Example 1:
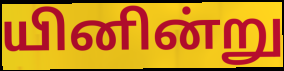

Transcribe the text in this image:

யினின்று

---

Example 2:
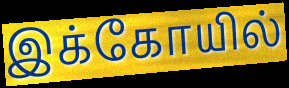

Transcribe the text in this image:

இக்கோயில்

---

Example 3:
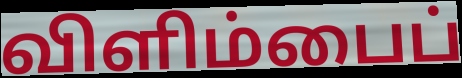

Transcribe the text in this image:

விளிம்பைப்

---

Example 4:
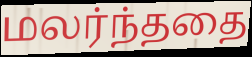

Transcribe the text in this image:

மலர்ந்ததை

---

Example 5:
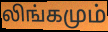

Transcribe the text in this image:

லிங்கமும்